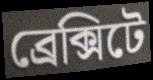
ব্রেক্সিটে